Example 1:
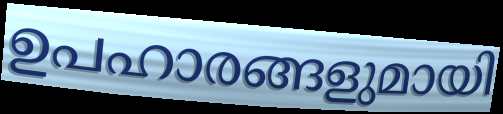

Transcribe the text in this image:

ഉപഹാരങ്ങളുമായി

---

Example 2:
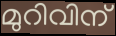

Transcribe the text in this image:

മുറിവിന്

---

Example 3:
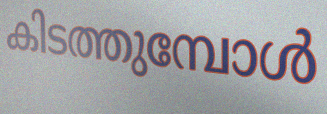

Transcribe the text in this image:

കിടത്തുമ്പോൾ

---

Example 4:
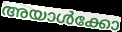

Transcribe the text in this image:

അയാൾക്കോ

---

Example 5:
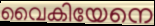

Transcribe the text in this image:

വൈകിയേനെ